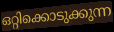
ഒറ്റിക്കൊടുക്കുന്ന